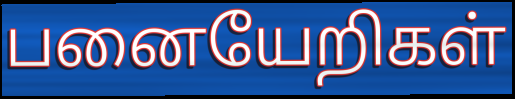
பனையேறிகள்